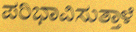
ಪರಿಭಾವಿಸುತ್ತಾಳೆ